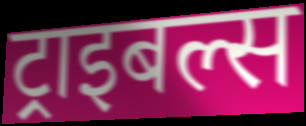
ट्राइबल्स